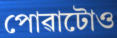
পোৱাটোও